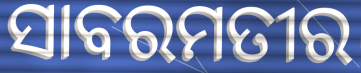
ସାବରମତୀର